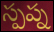
స్పప్న